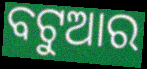
ବଟୁଆର